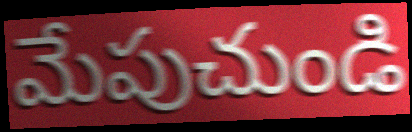
మేపుచుండి